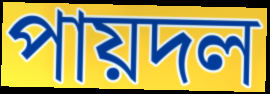
পায়দল